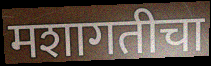
मशागतीचा